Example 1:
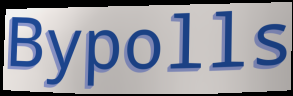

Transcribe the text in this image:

Bypolls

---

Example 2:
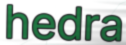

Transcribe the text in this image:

hedra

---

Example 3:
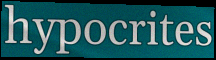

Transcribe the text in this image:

hypocrites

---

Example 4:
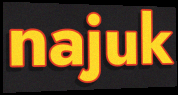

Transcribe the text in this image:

najuk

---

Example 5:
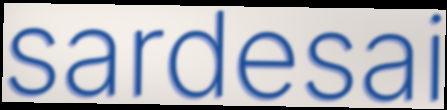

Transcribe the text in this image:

sardesai